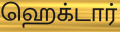
ஹெக்டார்